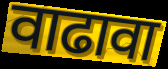
वाढावा